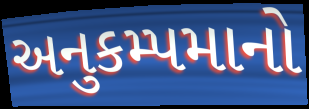
અનુકમ્પમાનો